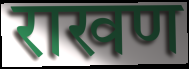
राखण